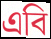
এবি